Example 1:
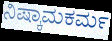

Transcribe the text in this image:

ನಿಷ್ಕಾಮಕರ್ಮ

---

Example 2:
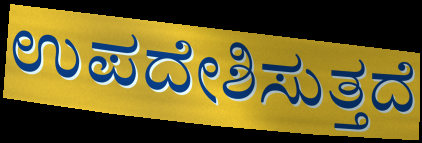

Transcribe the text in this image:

ಉಪದೇಶಿಸುತ್ತದೆ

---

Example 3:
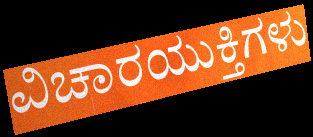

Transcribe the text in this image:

ವಿಚಾರಯುಕ್ತಿಗಳು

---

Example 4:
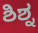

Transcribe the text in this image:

ಶಿಶ್ನ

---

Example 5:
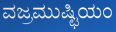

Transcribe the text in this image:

ವಜ್ರಮುಷ್ಟಿಯಂ